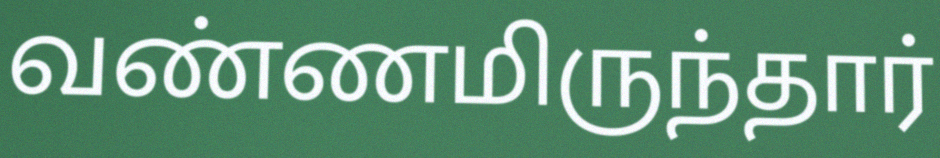
வண்ணமிருந்தார்